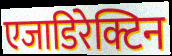
एजाडिरेक्टिन